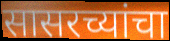
सासरच्यांचा